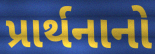
પ્રાર્થનાનો